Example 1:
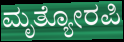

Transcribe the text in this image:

ಮೃತ್ಯೋರಪಿ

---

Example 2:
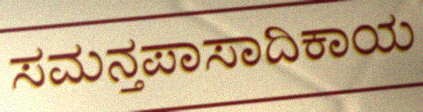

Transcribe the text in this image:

ಸಮನ್ತಪಾಸಾದಿಕಾಯ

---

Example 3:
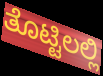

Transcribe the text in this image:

ತೊಟ್ಟಿಲಲ್ಲಿ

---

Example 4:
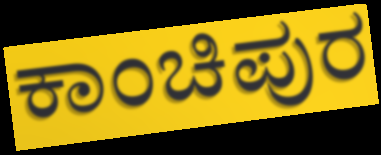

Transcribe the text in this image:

ಕಾಂಚಿಪುರ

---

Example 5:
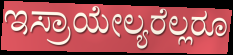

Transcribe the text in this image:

ಇಸ್ರಾಯೇಲ್ಯರೆಲ್ಲರೂ